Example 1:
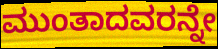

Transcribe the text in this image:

ಮುಂತಾದವರನ್ನೇ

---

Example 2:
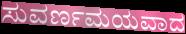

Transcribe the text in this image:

ಸುವರ್ಣಮಯವಾದ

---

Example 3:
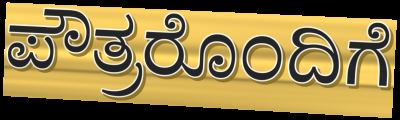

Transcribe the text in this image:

ಪೌತ್ರರೊಂದಿಗೆ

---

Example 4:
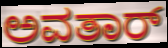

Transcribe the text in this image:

ಅವತಾರ್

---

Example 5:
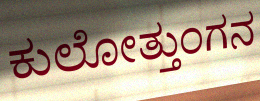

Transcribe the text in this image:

ಕುಲೋತ್ತುಂಗನ